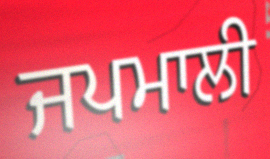
ਜਪਮਾਲੀ